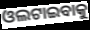
ଓଲଟାଇବାକୁ